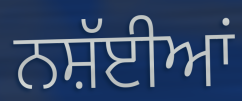
ਨਸ਼ੱਈਆਂ